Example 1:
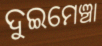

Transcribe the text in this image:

ଦୁଇମେଞ୍ଚା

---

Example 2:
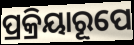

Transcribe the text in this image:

ପ୍ରକ୍ରିୟାରୂପେ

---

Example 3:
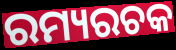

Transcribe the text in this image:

ରମ୍ୟରଚକ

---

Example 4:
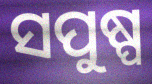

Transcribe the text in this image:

ସପୁଷ୍ପ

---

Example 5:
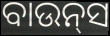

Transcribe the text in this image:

ବାଉନ୍‍ସ